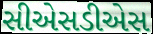
સીએસડીએસ